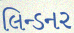
લિન્ડનર